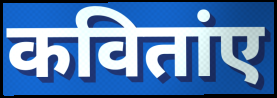
कवितांए